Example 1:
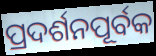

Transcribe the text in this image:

ପ୍ରଦର୍ଶନପୂର୍ବକ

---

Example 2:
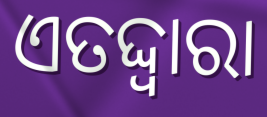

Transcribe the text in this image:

ଏତଦ୍ଦ୍ୱାରା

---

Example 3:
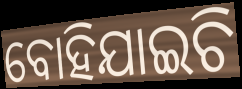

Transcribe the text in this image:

ବୋହିଯାଇଚି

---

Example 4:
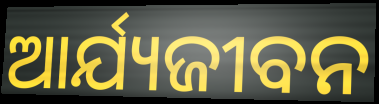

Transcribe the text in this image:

ଆର୍ଯ୍ୟଜୀବନ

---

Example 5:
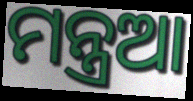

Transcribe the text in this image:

ମନ୍ତ୍ରଆ